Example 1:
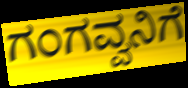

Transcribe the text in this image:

ಗಂಗವ್ವನಿಗೆ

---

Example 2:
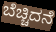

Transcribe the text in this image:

ಬೆಚ್ಚಿದನೆ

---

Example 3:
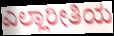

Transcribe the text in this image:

ಎಲ್ಲಾರೀತಿಯ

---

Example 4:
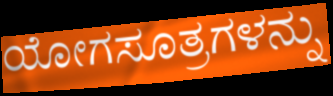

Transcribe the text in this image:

ಯೋಗಸೂತ್ರಗಳನ್ನು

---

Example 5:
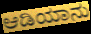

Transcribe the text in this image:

ಆಡಿಯಾನು